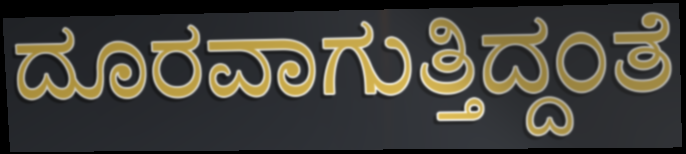
ದೂರವಾಗುತ್ತಿದ್ದಂತೆ